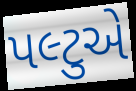
પલ્ટુએ